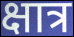
क्षात्र